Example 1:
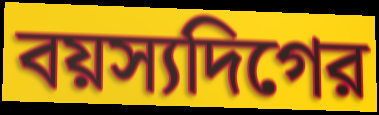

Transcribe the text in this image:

বয়স্যদিগের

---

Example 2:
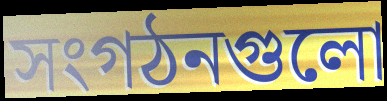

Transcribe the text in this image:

সংগঠনগুলো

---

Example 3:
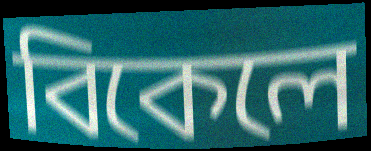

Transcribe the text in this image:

বিকেলে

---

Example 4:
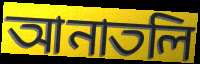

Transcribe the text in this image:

আনাতলি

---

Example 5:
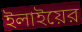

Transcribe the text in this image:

ইলাইয়ের